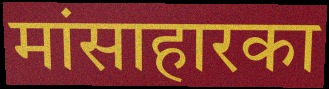
मांसाहारका